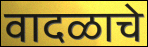
वादळाचे